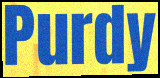
Purdy